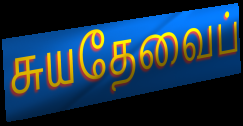
சுயதேவைப்